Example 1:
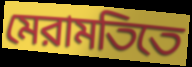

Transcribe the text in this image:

মেরামতিতে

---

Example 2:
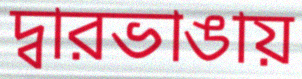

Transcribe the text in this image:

দ্বারভাঙায়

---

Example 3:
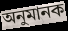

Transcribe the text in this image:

অনুমানক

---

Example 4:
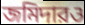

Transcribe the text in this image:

জমিদারও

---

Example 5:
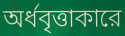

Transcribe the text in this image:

অর্ধবৃত্তাকারে